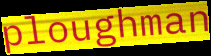
ploughman